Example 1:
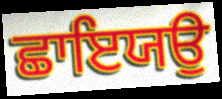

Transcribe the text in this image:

ਛਾਇਯਉ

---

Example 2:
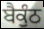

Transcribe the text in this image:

ਬੈਕੁੰਠ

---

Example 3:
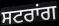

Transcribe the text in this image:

ਸਟਰਾਂਗ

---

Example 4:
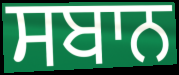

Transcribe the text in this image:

ਸਬਾਨ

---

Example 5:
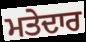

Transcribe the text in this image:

ਮਤੇਦਾਰ